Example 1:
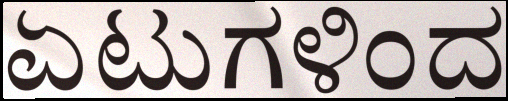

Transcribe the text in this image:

ಏಟುಗಳಿಂದ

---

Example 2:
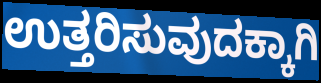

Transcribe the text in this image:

ಉತ್ತರಿಸುವುದಕ್ಕಾಗಿ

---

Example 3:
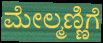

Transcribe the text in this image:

ಮೇಲ್ಮಣ್ಣಿಗೆ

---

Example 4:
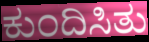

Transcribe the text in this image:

ಕುಂದಿಸಿತು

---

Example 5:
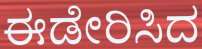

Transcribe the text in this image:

ಈಡೇರಿಸಿದ